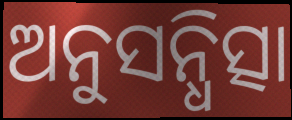
ଅନୁସନ୍ଧିତ୍ସା